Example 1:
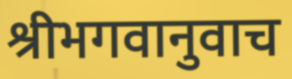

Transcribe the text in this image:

श्रीभगवानुवाच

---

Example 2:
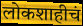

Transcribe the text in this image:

लोकशाहीचं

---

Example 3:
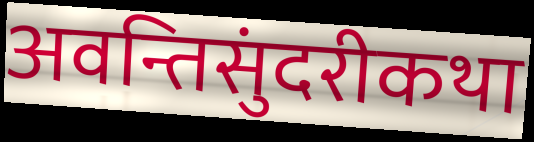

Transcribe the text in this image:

अवन्तिसुंदरीकथा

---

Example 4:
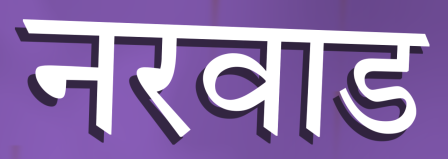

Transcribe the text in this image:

नरवाड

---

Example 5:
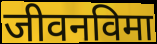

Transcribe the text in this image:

जीवनविमा